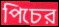
পিচের